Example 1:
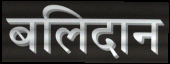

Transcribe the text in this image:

बलिदान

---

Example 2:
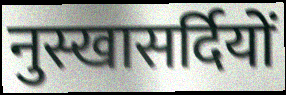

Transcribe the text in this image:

नुस्खासर्दियों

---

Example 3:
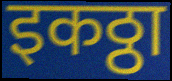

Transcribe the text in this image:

इकठ्ठा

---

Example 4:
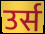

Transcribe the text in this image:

उर्स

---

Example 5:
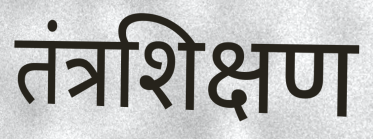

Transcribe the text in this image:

तंत्रशिक्षण